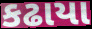
કઢાયા